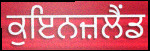
ਕੁਇਨਜ਼ਲੈਂਡ